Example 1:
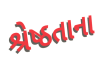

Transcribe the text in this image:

શ્રેષ્ઠતાના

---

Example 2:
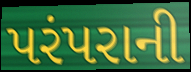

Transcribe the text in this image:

પરંપરાની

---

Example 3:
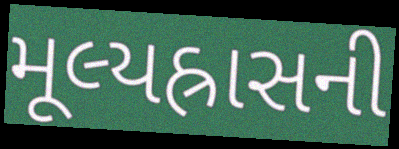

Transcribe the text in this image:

મૂલ્યહ્રાસની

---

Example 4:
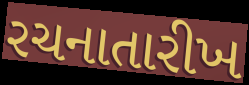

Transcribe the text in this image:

રચનાતારીખ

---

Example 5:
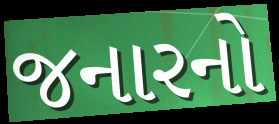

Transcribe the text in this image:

જનારનો